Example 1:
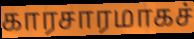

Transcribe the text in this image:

காரசாரமாகச்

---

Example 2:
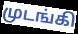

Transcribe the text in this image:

முடங்கி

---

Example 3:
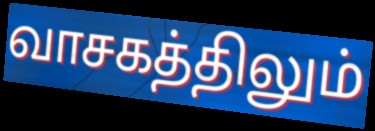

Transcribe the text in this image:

வாசகத்திலும்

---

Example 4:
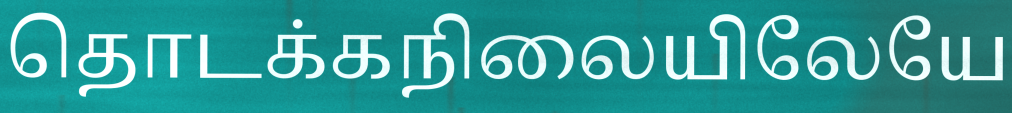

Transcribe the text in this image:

தொடக்கநிலையிலேயே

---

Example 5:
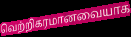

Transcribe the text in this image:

வெற்றிகரமானவையாக